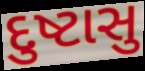
દુષ્ટાસુ